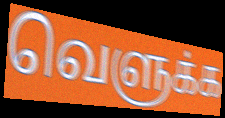
வெளுக்க